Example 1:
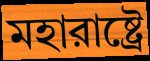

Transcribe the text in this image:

মহারাষ্ট্রে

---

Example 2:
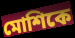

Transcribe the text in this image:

মোশিকে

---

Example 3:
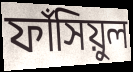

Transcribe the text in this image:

ফাঁসিয়ুল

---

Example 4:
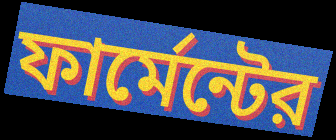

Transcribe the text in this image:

ফার্মেন্টের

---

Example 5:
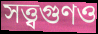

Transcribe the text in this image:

সত্ত্বগুণও